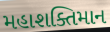
મહાશક્તિમાન